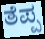
ತೆಪ್ಪ